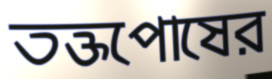
তক্তপোষের